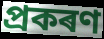
প্ৰকৰণ